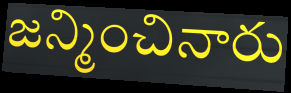
జన్మించినారు